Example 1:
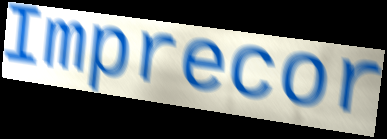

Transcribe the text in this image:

Imprecor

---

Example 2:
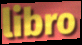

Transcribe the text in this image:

libro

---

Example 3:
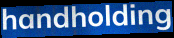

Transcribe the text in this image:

handholding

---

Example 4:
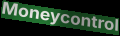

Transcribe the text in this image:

Moneycontrol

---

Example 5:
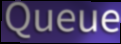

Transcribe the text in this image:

Queue